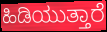
ಹಿಡಿಯುತ್ತಾರೆ